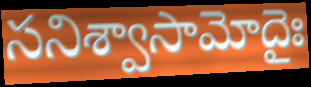
సనిశ్వాసామోదైః